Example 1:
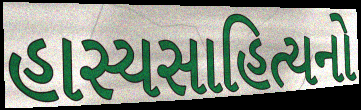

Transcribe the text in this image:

હાસ્યસાહિત્યનો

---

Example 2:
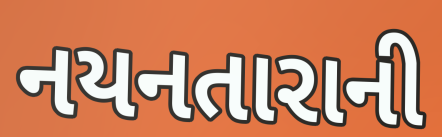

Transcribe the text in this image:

નયનતારાની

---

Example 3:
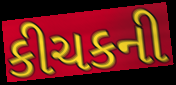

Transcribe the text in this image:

કીચકની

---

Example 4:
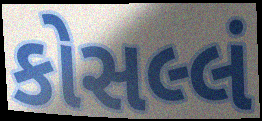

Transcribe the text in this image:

કોસલ્લં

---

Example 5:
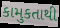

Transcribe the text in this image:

કામુકતાથી